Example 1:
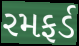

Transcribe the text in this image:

રમફર્ડ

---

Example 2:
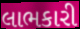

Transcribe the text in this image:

લાભકારી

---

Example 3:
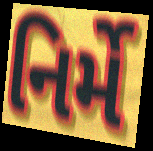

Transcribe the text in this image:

નિર્મે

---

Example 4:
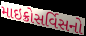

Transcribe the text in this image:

માઇક્રોસર્વિસનો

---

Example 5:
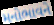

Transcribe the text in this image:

મનોભાવને